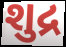
શુદ્ર